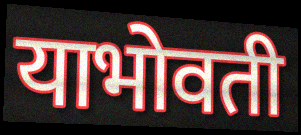
याभोवती